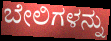
ಬೇಲಿಗಳನ್ನು